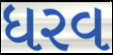
ધરવ